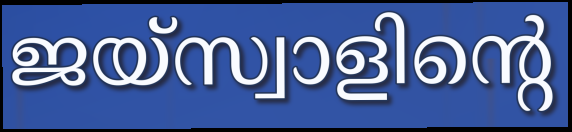
ജയ്സ്വാളിന്റെ